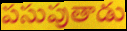
పసుపుతాడు